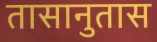
तासानुतास